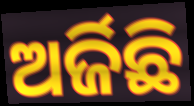
ଅର୍ଜିଛି